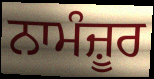
ਨਾਮੰਜ਼ੂਰ